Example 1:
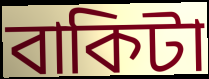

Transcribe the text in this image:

বাকিটা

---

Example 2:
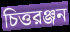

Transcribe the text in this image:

চিত্তরঞ্জন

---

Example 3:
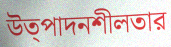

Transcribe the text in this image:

উত্পাদনশীলতার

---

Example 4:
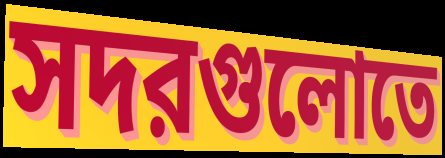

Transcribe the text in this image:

সদরগুলোতে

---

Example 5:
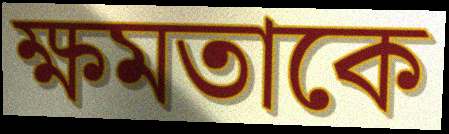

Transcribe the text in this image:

ক্ষমতাকে